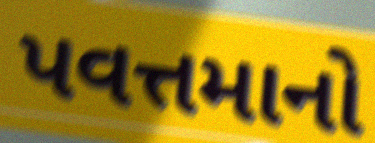
પવત્તમાનો